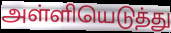
அள்ளியெடுத்து